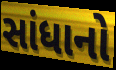
સાંધાનો